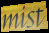
mist